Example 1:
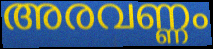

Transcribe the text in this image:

അരവണ്ണം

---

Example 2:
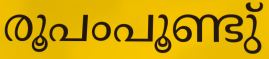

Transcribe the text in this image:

രൂപംപൂണ്ടു്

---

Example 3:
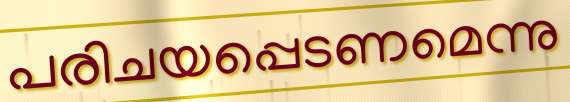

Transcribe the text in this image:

പരിചയപ്പെടണമെന്നു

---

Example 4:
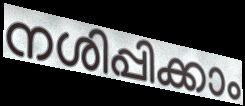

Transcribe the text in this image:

നശിപ്പിക്കാം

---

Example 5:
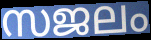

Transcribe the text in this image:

സജലം